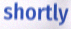
shortly